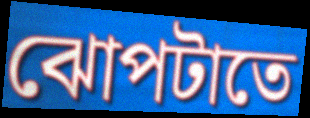
ঝোপটাতে